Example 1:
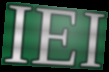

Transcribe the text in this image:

IEI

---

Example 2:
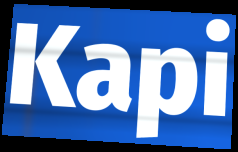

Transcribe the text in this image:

Kapi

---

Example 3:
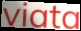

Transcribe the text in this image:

viata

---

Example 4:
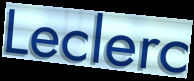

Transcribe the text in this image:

Leclerc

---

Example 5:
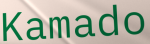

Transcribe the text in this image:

Kamado